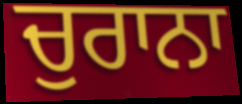
ਚੁਰਾਨਾ